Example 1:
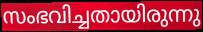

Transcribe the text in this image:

സംഭവിച്ചതായിരുന്നു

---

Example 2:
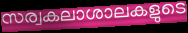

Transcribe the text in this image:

സര്വകലാശാലകളുടെ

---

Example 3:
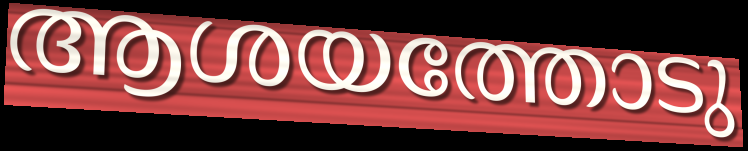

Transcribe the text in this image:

ആശയത്തോടു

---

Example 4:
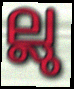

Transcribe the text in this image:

ല്ലു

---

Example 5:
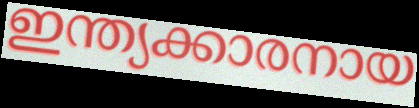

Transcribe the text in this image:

ഇന്ത്യക്കാരനായ